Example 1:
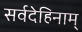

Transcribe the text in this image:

सर्वदेहिनाम्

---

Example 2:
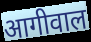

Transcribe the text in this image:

आगीवाल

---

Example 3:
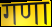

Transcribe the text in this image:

गणा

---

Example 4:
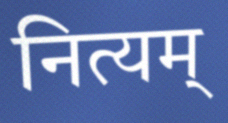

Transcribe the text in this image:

नित्यम्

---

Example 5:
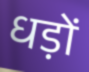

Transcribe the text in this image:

धड़ों